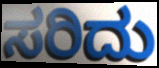
ಸರಿದು